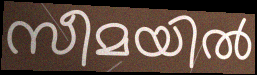
സീമയിൽ